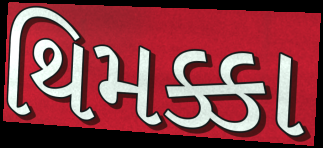
થિમક્કા